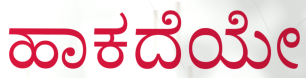
ಹಾಕದೆಯೇ